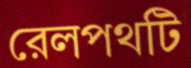
রেলপথটি